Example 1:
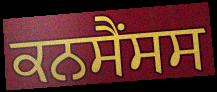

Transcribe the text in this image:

ਕਨਸੈਂਸਸ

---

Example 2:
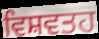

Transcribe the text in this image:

ਵਿਸ਼ਵਤਹ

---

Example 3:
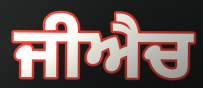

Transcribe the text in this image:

ਜੀਐਚ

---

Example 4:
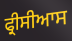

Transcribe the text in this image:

ਫ੍ਰੀਸੀਆਸ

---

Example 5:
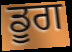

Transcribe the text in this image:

ਡੂਗ